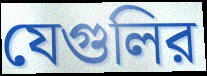
যেগুলির